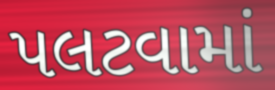
પલટવામાં